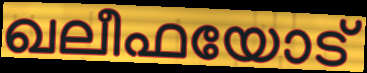
ഖലീഫയോട്